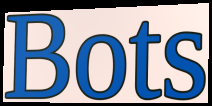
Bots